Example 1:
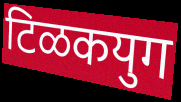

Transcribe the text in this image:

टिळकयुग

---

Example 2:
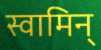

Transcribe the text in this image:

स्वामिन्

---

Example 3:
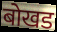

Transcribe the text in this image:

बोखड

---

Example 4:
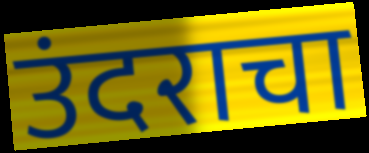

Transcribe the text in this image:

उंदराचा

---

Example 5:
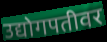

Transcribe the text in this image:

उद्योगपतीवर